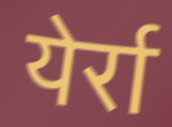
येर्रा